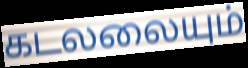
கடலலையும்